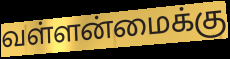
வள்ளன்மைக்கு